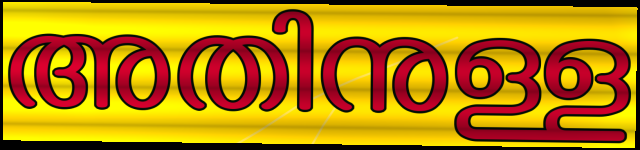
അതിനുള്ള